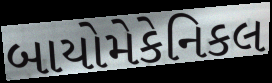
બાયોમેકેનિકલ